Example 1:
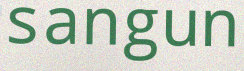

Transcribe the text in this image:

sangun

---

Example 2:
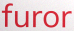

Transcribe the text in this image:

furor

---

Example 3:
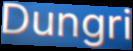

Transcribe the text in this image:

Dungri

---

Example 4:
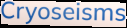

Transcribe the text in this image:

Cryoseisms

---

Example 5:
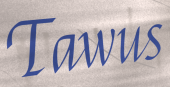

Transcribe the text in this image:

Tawus